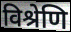
विश्रेणि